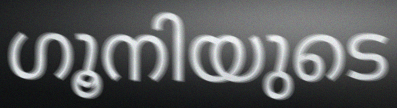
ഗൂനിയുടെ